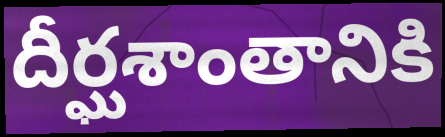
దీర్ఘశాంతానికి